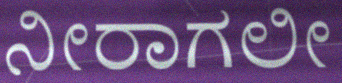
ನೀರಾಗಲೀ